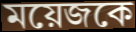
ময়েজকে